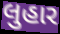
લુહાર